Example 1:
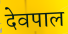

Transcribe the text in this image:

देवपाल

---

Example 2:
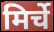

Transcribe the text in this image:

मिर्चे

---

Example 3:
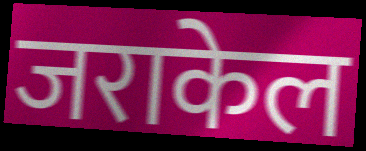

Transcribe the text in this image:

जराकेल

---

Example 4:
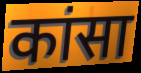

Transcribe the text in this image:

कांसा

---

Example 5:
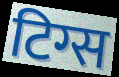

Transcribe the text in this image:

टिग्स